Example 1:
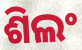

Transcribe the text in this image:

ଶିଲଂ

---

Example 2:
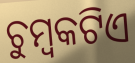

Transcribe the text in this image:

ଚୁମ୍ବକଟିଏ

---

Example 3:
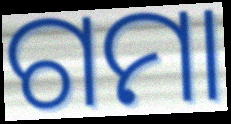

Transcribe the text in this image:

ଗମା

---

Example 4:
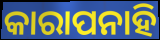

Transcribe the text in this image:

କାରାପନାହି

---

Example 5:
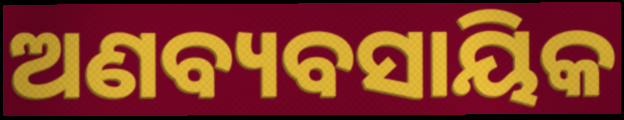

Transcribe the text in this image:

ଅଣବ୍ୟବସାୟିକ